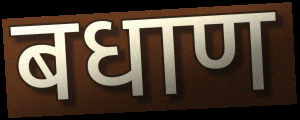
बधाण